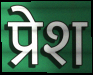
प्रेश